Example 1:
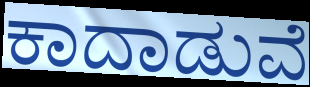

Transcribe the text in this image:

ಕಾದಾಡುವೆ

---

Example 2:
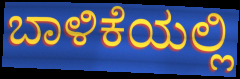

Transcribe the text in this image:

ಬಾಳಿಕೆಯಲ್ಲಿ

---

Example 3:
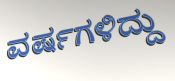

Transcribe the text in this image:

ವರ್ಷಗಳಿದ್ದು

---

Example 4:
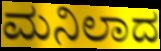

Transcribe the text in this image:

ಮನಿಲಾದ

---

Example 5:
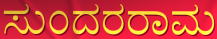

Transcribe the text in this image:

ಸುಂದರರಾಮ